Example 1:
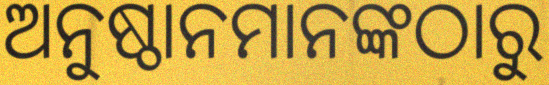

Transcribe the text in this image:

ଅନୁଷ୍ଠାନମାନଙ୍କଠାରୁ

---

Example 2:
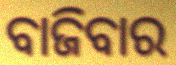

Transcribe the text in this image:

ବାଜିବାର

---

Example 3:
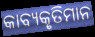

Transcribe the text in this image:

କାବ୍ୟକୃତିମାନ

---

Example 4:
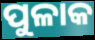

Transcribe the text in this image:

ପୁଳାକ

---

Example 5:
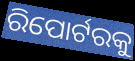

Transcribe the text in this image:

ରିପୋର୍ଟରକୁ